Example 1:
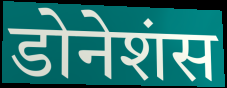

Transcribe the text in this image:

डोनेशंस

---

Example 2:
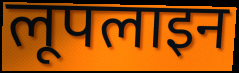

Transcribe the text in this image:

लूपलाइन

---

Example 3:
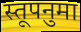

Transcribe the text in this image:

स्तूपनुमा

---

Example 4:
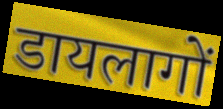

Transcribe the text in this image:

डायलागों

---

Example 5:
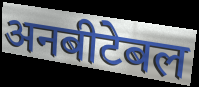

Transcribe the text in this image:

अनबीटेबल